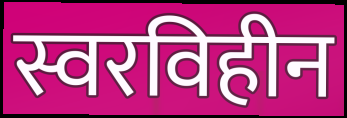
स्वरविहीन